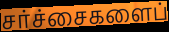
சர்ச்சைகளைப்